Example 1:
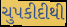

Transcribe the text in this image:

ચુપકીદીથી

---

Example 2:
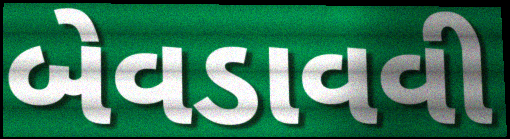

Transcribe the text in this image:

બેવડાવવી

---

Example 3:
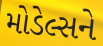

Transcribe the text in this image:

મોડેલ્સને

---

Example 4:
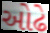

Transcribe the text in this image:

ઓઢે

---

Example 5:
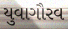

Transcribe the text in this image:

યુવાગૌરવ